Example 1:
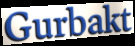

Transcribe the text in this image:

Gurbakt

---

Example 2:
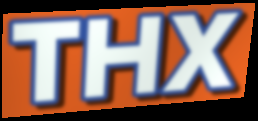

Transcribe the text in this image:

THX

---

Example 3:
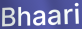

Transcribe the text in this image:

Bhaari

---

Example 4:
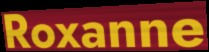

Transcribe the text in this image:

Roxanne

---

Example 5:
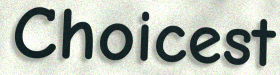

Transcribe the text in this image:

Choicest